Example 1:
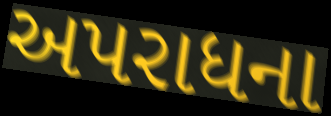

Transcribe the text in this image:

અપરાધના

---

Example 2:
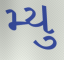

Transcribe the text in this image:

મ્યુ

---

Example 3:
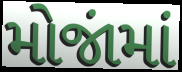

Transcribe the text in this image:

મોજાંમાં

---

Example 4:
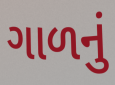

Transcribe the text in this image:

ગાળનું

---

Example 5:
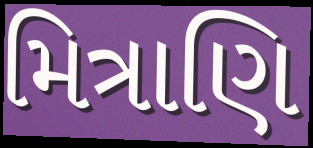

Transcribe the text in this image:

મિત્રાણિ